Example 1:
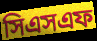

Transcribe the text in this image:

সিএসএফ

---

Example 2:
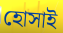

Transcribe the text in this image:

হোসাই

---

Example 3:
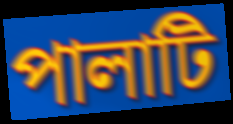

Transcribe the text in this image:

পালাটি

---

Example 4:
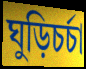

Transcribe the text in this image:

ঘুড়িচর্চা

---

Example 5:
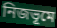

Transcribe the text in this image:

নিজভূমে